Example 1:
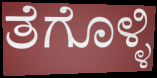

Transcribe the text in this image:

ತೆಗೊಳ್ಳಿ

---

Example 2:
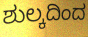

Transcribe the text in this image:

ಶುಲ್ಕದಿಂದ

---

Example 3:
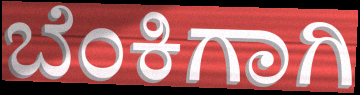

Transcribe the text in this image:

ಬೆಂಕಿಗಾಗಿ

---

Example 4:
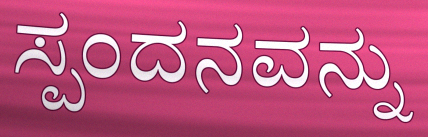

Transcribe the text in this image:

ಸ್ಪಂದನವನ್ನು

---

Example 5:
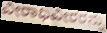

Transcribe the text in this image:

ವೀರಾಧಿವೀರರನ್ನು